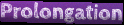
Prolongation